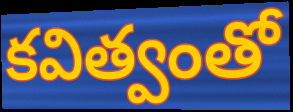
కవిత్వంతో